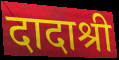
दादाश्री